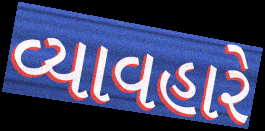
વ્યાવહારે